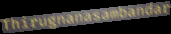
Thirugnanasambandar